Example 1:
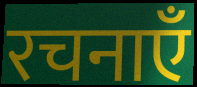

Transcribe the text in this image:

रचनाएँ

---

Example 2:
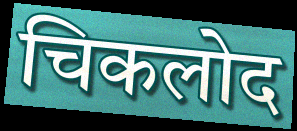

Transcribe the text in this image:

चिकलोद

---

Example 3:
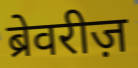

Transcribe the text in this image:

ब्रेवरीज़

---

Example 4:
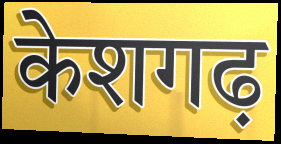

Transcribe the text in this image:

केशगढ़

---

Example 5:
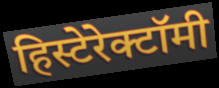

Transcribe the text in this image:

हिस्टेरेक्टॉमी